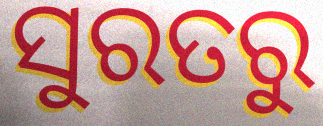
ସୁରତରୁ